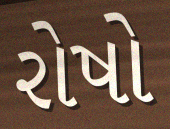
રોષો